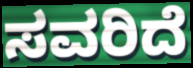
ಸವರಿದೆ